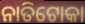
ନାତିଟୋକା